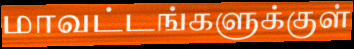
மாவட்டங்களுக்குள்